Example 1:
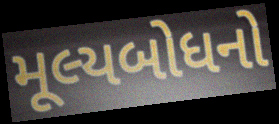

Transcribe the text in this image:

મૂલ્યબોધનો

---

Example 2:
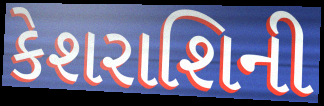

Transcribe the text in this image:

કેશરાશિની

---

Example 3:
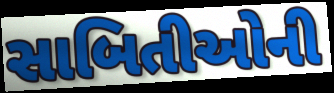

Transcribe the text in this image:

સાબિતીઓની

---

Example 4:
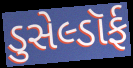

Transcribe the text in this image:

ડુસેલ્ડૉર્ફ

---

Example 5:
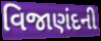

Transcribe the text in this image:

વિજાણંદની